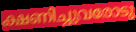
ക്ഷണിച്ചുവരോടു